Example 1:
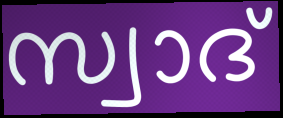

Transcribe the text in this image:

സ്വാദ്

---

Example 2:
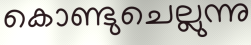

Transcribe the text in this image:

കൊണ്ടുചെല്ലുന്നു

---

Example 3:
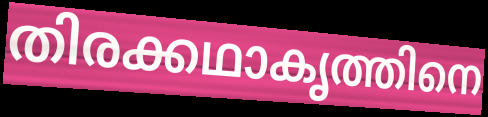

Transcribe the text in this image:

തിരക്കഥാകൃത്തിനെ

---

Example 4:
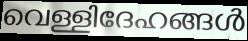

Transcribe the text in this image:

വെള്ളിദേഹങ്ങൾ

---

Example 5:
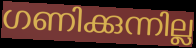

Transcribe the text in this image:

ഗണിക്കുന്നില്ല